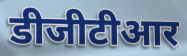
डीजीटीआर